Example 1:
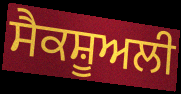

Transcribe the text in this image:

ਸੈਕਸ਼ੂਅਲੀ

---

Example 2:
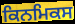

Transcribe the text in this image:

ਕਿਨਮਿਕਸ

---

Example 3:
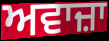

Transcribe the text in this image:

ਅਵਾਜ਼ਾ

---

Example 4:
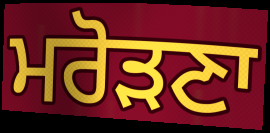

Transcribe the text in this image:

ਮਰੋੜਣਾ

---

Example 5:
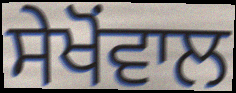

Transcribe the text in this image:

ਸੇਖੋਂਵਾਲ